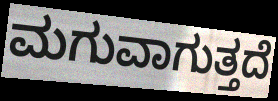
ಮಗುವಾಗುತ್ತದೆ